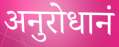
अनुरोधानं